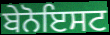
ਬੇਨੋਇਸਟ